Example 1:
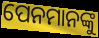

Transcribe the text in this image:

ପେନମାନଙ୍କୁ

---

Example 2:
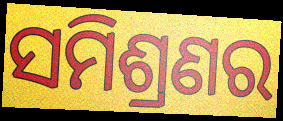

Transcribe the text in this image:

ସମିଶ୍ରଣର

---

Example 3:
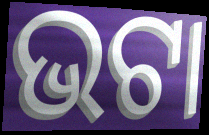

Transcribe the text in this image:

ଭଟା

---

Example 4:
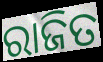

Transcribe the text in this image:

ରାଜିତ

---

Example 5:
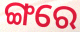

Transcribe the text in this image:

ଙ୍ଗରେ